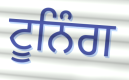
ਟੂਨਿੰਗ